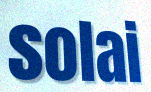
solai